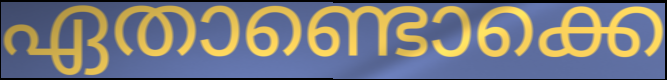
ഏതാണ്ടൊക്കെ